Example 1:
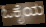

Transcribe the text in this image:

ಓಕೈಯ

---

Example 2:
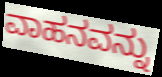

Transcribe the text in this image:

ವಾಹನವನ್ನು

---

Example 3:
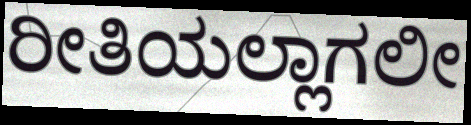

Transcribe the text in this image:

ರೀತಿಯಲ್ಲಾಗಲೀ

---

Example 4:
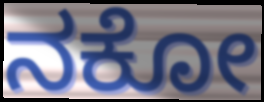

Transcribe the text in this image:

ನಕೋ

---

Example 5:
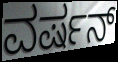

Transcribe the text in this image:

ವರ್ಷನ್